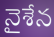
నైశేన